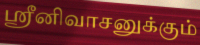
ஸ்ரீனிவாசனுக்கும்